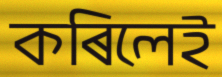
কৰিলেই